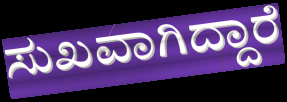
ಸುಖವಾಗಿದ್ದಾರೆ